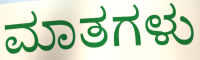
ಮಾತಗಳು